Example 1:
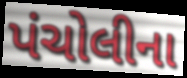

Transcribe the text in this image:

પંચોલીના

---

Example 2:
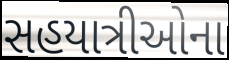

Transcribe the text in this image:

સહયાત્રીઓના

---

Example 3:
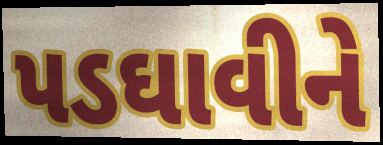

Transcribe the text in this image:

પડઘાવીને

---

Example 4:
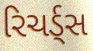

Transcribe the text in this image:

રિચર્ડ્સ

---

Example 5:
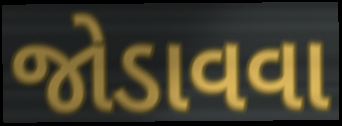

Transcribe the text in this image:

જોડાવવા